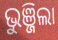
ଭୁଞ୍ଜିଲା